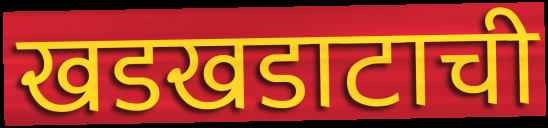
खडखडाटाची